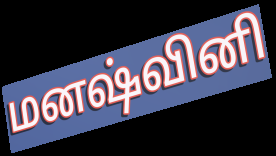
மனஷ்வினி